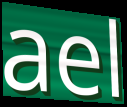
ael